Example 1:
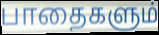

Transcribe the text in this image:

பாதைகளும்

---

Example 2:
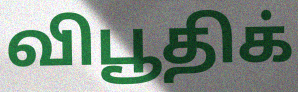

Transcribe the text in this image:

விபூதிக்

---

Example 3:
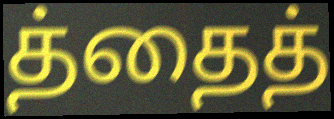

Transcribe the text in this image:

த்தைத்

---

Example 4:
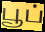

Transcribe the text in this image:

பூப்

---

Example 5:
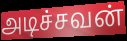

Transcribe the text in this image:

அடிச்சவன்